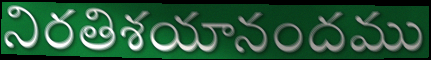
నిరతిశయానందము